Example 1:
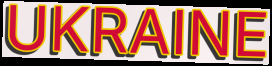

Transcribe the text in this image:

UKRAINE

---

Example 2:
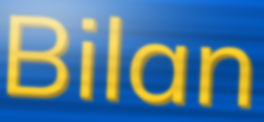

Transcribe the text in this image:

Bilan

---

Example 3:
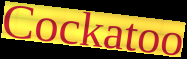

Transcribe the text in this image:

Cockatoo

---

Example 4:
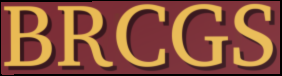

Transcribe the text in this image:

BRCGS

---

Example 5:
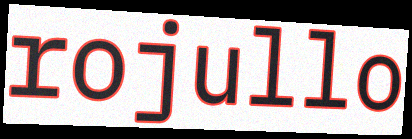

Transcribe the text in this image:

rojullo